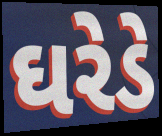
ઘરેડે